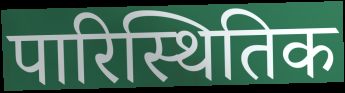
पारिस्थितिक